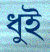
ধুই